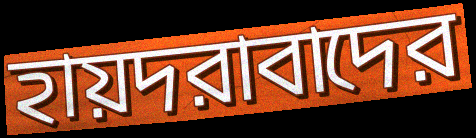
হায়দরাবাদের